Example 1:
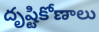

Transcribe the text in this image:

దృష్టికోణాలు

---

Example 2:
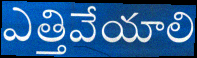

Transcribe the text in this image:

ఎత్తివేయాలి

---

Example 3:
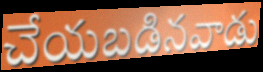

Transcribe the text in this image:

చేయబడినవాడు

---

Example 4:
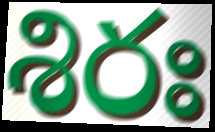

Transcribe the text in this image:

శిరః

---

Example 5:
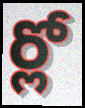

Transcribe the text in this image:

ర్లో